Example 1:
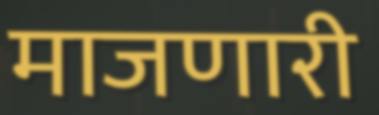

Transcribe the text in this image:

माजणारी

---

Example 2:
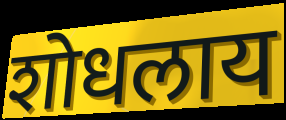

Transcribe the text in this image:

शोधलाय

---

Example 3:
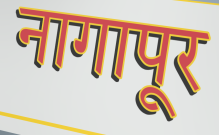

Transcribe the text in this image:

नागापूर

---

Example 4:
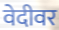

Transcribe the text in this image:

वेदीवर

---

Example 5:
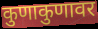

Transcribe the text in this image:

कुणाकुणावर